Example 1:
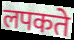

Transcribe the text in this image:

लपकते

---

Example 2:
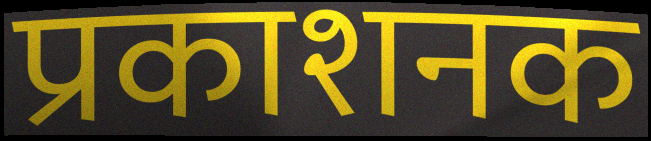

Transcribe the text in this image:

प्रकाशनक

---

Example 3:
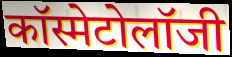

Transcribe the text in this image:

कॉस्मेटोलॉजी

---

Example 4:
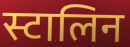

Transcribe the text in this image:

स्टालिन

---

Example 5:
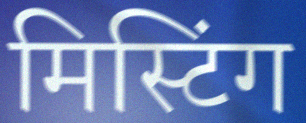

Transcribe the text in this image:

मिस्टिंग